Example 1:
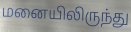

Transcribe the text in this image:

மனையிலிருந்து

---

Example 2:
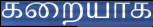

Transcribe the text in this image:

கறையாக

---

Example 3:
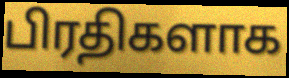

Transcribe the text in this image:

பிரதிகளாக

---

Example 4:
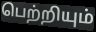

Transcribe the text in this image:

பெற்றியும்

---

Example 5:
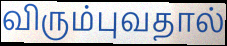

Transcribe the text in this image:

விரும்புவதால்